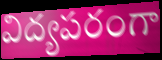
విద్యపరంగా